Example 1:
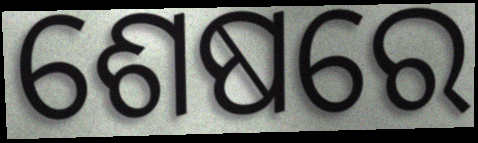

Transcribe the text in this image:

ଶେଷରେ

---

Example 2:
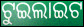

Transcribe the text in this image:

ଟୁଇଲାଇଟ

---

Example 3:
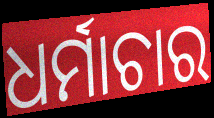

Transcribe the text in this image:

ଧର୍ମାଚାର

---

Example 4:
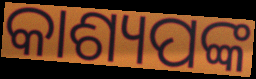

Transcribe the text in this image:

କାଶ୍ୟପଙ୍କ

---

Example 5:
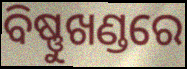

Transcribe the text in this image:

ବିଷ୍ଣୁଖଣ୍ଡରେ